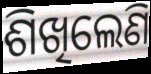
ଶିଖିଲେଣି